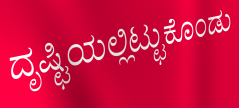
ದೃಷ್ಟಿಯಲ್ಲಿಟ್ಟುಕೊಂಡು